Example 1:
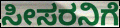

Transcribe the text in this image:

ಸೀಸರನಿಗೆ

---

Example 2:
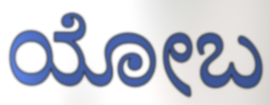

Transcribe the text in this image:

ಯೋಬ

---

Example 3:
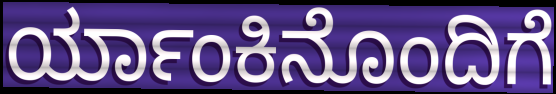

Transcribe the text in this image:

ರ್ಯಾಂಕಿನೊಂದಿಗೆ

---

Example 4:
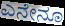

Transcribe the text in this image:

ಎನೇನೂ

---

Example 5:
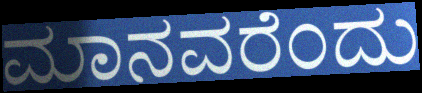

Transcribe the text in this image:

ಮಾನವರೆಂದು